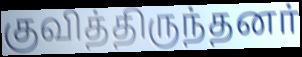
குவித்திருந்தனர்